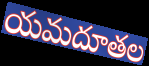
యమదూతల